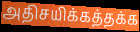
அதிசயிக்கத்தக்க